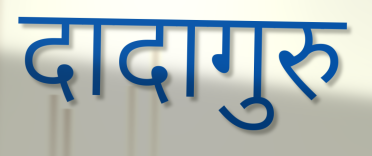
दादागुरु